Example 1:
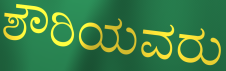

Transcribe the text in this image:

ಶೌರಿಯವರು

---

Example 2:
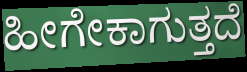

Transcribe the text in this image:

ಹೀಗೇಕಾಗುತ್ತದೆ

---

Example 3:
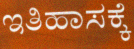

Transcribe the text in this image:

ಇತಿಹಾಸಕ್ಕೆ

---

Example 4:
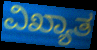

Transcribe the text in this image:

ವಿಖ್ಯಾತ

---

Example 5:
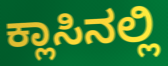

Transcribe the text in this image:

ಕ್ಲಾಸಿನಲ್ಲಿ